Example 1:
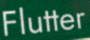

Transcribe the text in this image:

Flutter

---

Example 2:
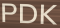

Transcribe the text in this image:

PDK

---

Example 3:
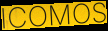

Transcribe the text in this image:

ICOMOS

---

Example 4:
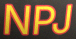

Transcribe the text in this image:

NPJ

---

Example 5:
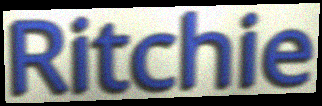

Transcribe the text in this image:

Ritchie